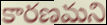
కారణమని